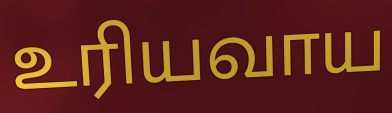
உரியவாய